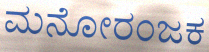
ಮನೋರಂಜಕ